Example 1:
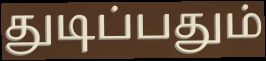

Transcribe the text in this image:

துடிப்பதும்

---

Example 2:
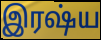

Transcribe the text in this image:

இரஷ்ய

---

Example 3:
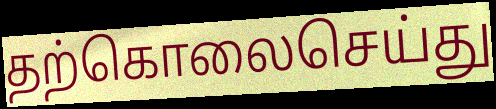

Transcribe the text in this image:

தற்கொலைசெய்து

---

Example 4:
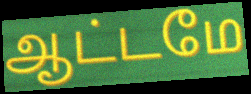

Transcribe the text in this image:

ஆட்டமே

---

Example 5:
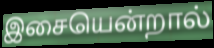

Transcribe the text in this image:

இசையென்றால்